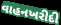
વાહનખરીદી